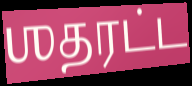
ஶதரட்ட